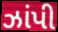
ઝાંપી